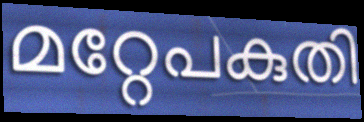
മറ്റേപകുതി